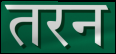
तरन